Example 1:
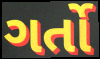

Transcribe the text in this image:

ગર્તો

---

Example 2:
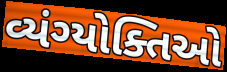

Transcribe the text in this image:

વ્યંગ્યોક્તિઓ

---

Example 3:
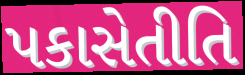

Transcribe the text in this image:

પકાસેતીતિ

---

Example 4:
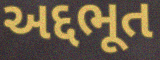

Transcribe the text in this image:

અદ્દભૂત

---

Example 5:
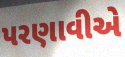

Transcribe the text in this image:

પરણાવીએ